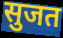
सुजत